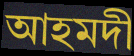
আহমদী